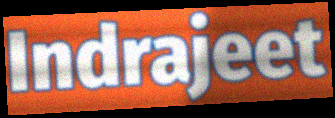
Indrajeet